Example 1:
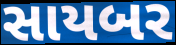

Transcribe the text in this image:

સાયબર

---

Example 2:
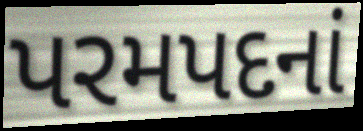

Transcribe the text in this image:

પરમપદનાં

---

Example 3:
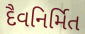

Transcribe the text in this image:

દૈવનિર્મિત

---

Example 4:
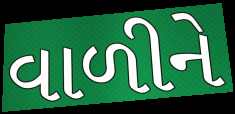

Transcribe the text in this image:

વાળીને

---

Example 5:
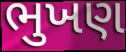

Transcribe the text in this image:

ભુખણ